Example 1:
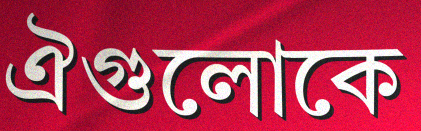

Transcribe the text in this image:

ঐগুলোকে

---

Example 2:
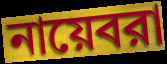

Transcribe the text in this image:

নায়েবরা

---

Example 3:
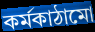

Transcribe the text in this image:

কর্মকাঠামো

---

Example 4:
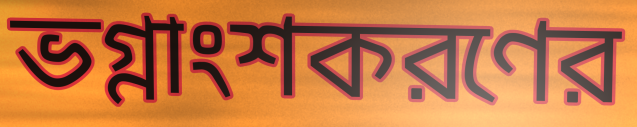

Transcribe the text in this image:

ভগ্নাংশকরণের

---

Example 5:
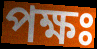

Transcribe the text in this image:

পক্ষঃ